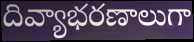
దివ్యాభరణాలుగా